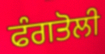
ਫੰਗਤੋਲੀ